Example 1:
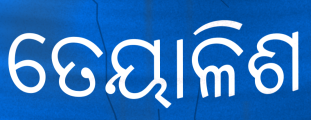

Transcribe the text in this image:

ତେୟାଳିଶ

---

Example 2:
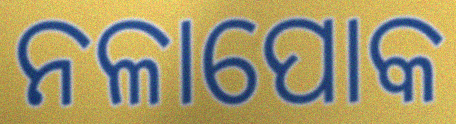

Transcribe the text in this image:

ନଳାପୋକ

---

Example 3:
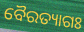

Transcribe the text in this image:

ବୈରତ୍ୟାଗଃ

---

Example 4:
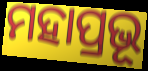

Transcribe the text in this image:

ମହାପ୍ରଭୂ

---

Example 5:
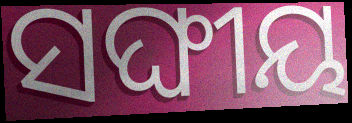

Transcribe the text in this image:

ସଙ୍ଘୀୟ